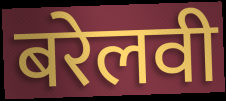
बरेलवी